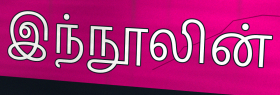
இந்நூலின்